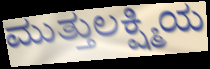
ಮುತ್ತುಲಕ್ಷ್ಮಿಯ